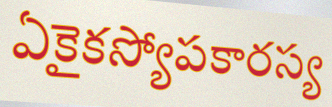
ఏకైకస్యోపకారస్య